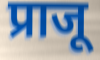
प्राजू